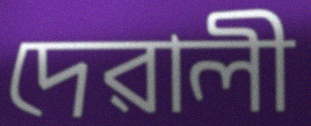
দেৱালী